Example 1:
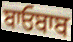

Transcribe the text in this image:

ਬਾਓਬਾਬ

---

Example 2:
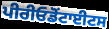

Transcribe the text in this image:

ਪੀਰੀਓਡੋਂਟਾਈਟਸ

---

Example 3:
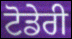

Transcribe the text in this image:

ਟੋਡੇਰੀ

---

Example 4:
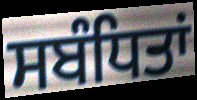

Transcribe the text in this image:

ਸਬੰਧਿਤਾਂ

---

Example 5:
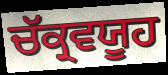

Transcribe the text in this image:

ਚੱਕ੍ਰਵਯੂਹ